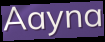
Aayna